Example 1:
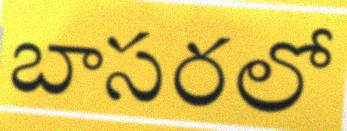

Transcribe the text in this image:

బాసరలో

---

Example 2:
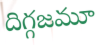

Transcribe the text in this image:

దిగ్గజమూ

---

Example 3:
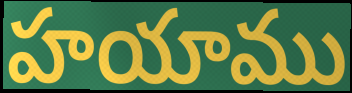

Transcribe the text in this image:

హయాము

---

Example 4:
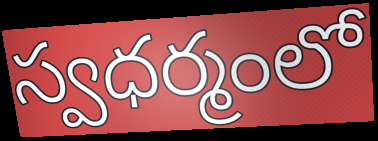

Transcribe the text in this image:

స్వధర్మంలో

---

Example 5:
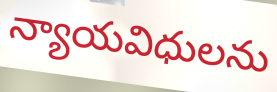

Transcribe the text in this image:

న్యాయవిధులను